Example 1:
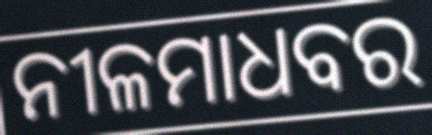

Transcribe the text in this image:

ନୀଳମାଧବର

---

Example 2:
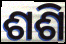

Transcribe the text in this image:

ଶଶି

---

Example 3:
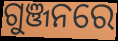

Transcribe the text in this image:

ଗୁଞ୍ଜନରେ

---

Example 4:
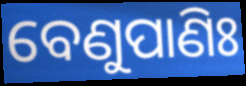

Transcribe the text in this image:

ବେଣୁପାଣିଃ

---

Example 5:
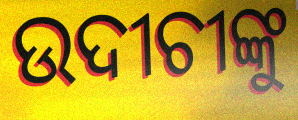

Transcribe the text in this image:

ଉଦୀଚୀଙ୍କୁ